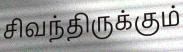
சிவந்திருக்கும்